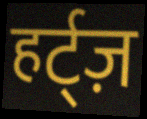
हर्ट्ज़